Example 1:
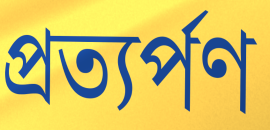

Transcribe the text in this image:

প্ৰত্যৰ্পণ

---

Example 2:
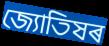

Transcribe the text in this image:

জ্যোতিষৰ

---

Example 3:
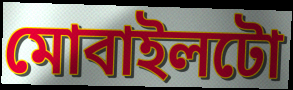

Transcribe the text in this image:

মোবাইলটো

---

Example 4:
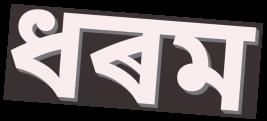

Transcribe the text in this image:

ধৰম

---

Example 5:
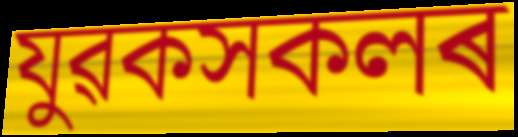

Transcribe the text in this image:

যুৱকসকলৰ